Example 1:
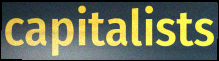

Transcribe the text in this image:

capitalists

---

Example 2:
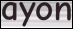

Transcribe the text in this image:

ayon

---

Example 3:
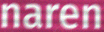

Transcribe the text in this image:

naren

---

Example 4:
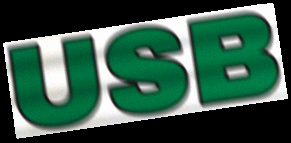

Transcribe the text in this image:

USB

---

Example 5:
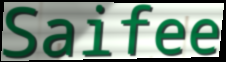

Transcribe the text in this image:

Saifee